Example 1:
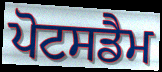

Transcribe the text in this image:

ਪੋਟਸਡੈਮ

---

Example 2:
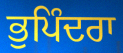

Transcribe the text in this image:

ਭੁਪਿੰਦਰਾ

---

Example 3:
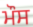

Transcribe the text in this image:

ਮੌਸ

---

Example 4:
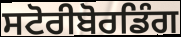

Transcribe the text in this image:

ਸਟੋਰੀਬੋਰਡਿੰਗ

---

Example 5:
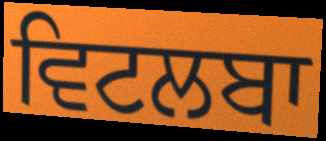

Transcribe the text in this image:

ਵਿਟਲਬਾ